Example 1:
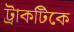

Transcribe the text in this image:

ট্রাকটিকে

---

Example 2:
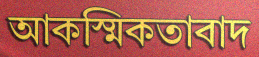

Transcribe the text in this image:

আকস্মিকতাবাদ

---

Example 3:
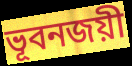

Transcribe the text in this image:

ভূবনজয়ী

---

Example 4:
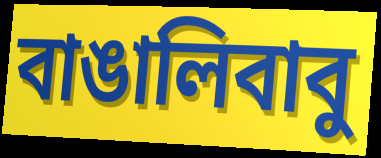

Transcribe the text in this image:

বাঙালিবাবু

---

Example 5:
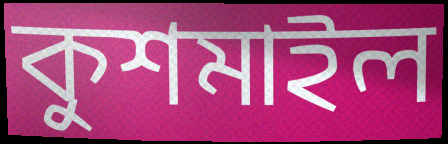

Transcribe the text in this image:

কুশমাইল